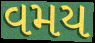
વમય